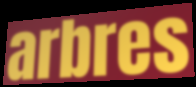
arbres